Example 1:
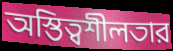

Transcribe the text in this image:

অস্তিত্বশীলতার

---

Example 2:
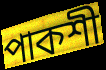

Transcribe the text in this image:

পাকশী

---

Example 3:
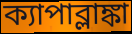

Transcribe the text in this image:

ক্যাপাব্লাঙ্কা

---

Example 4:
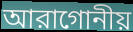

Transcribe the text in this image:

আরাগোনীয়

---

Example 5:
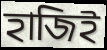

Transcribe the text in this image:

হাজিই